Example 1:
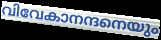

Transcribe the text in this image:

വിവേകാനന്ദനെയും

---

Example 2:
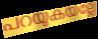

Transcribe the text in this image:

പറയുകയല്ലേ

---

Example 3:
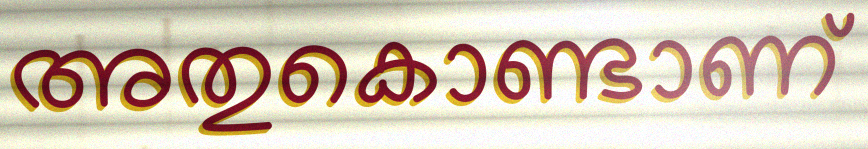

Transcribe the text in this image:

അതുകൊണ്ടാണ്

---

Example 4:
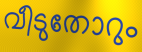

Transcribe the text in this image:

വീടുതോറും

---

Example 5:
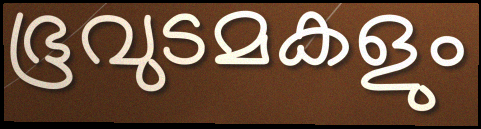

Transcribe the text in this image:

ഭൂവുടമകളും